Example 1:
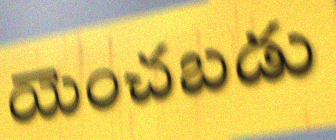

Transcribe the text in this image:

యెంచబడు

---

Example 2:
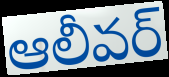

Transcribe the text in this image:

ఆలీవర్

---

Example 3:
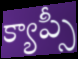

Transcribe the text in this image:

క్యాప్సీ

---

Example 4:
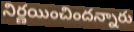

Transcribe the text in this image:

నిర్ణయించిందన్నారు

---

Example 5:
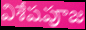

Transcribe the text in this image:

విశేషపూజ